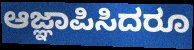
ಆಜ್ಞಾಪಿಸಿದರೂ